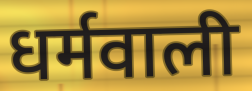
धर्मवाली